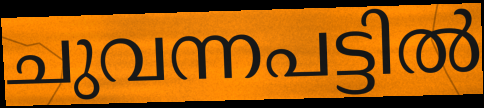
ചുവന്നപട്ടിൽ